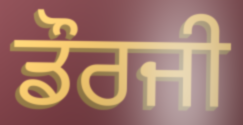
ਡੌਰਜੀ